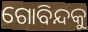
ଗୋବିନ୍ଦକୁ